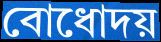
বোধোদয়